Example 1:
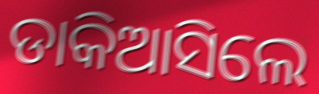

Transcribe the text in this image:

ଡାକିଆସିଲେ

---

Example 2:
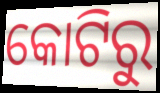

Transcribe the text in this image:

କୋଟିରୁ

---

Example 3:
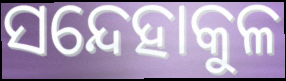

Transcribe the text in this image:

ସନ୍ଦେହାକୁଳ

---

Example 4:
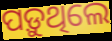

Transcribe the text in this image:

ପଡ଼ୁଥିଲେ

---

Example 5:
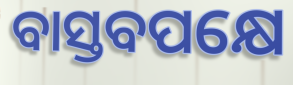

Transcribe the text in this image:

ବାସ୍ତବପକ୍ଷେ